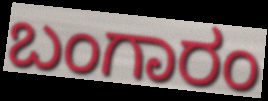
ಬಂಗಾರಂ